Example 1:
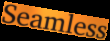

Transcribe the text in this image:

Seamless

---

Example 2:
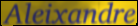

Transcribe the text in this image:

Aleixandre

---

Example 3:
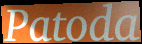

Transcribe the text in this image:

Patoda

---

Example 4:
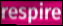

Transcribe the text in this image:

respire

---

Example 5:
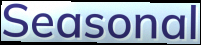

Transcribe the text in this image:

Seasonal